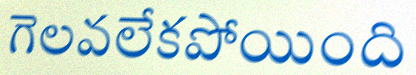
గెలవలేకపోయింది